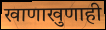
खाणाखुणाही